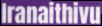
Iranaithivu